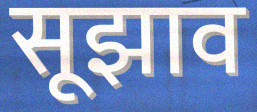
सूझाव